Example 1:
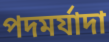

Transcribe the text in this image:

পদমৰ্যাদা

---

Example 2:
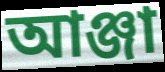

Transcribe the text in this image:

আঞ্জা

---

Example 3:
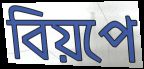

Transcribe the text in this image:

বিয়পে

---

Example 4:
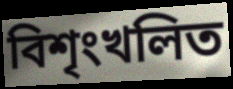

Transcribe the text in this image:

বিশৃংখলিত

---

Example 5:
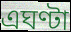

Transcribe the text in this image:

এঘণ্টা